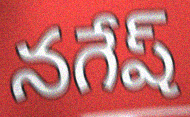
నగేష్